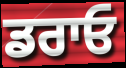
ਡਰਾਓ